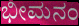
ಭೀಮನಂ